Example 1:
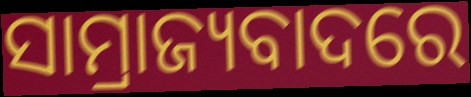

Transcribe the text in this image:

ସାମ୍ରାଜ୍ୟବାଦରେ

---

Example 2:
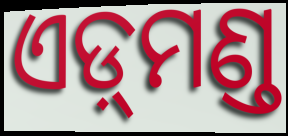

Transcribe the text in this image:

ଏଡ଼୍‌ମଣ୍ଡ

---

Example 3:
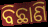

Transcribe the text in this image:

ବିଛାଣି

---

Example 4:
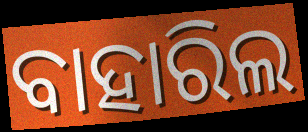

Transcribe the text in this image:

ବାହାରିଲ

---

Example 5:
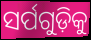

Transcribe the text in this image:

ସର୍ପଗୁଡ଼ିକୁ